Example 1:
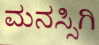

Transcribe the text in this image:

ಮನಸ್ಸಿಗಿ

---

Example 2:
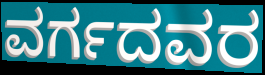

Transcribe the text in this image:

ವರ್ಗದವರ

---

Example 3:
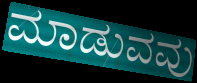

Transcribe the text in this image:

ಮಾಡುವವು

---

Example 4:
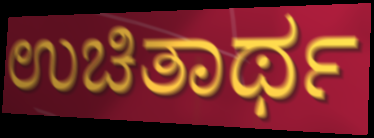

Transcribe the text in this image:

ಉಚಿತಾರ್ಥ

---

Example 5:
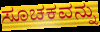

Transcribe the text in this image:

ಸೂಚಕವನ್ನು